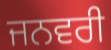
ਜਨਵਰੀ